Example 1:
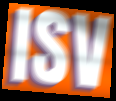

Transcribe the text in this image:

ISV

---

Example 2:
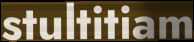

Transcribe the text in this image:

stultitiam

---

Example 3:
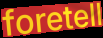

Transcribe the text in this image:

foretell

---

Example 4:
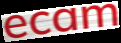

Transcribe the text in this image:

ecam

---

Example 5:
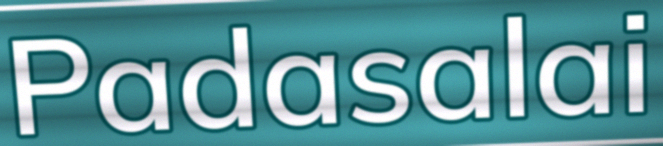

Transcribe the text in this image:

Padasalai